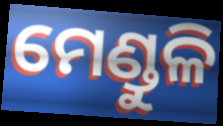
ମେଣ୍ଡୁଳି